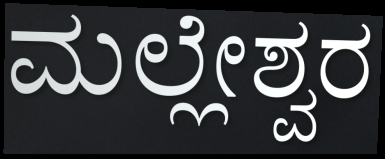
ಮಲ್ಲೇಶ್ವರ